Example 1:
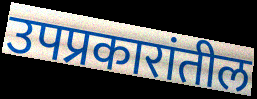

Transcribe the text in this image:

उपप्रकारांतील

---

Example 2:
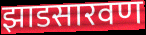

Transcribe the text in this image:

झाडसारवण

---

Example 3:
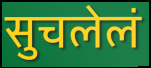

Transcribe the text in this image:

सुचलेलं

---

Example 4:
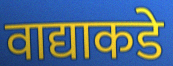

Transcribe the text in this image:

वाद्याकडे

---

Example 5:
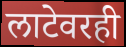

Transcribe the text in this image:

लाटेवरही